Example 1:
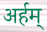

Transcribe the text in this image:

अर्हम्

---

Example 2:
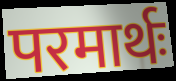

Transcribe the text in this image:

परमार्थः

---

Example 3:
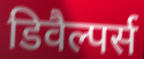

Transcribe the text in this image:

डिवैल्पर्स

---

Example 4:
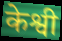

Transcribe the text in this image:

केश्वी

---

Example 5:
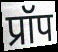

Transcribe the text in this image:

प्रॉप